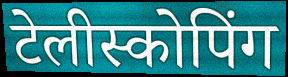
टेलीस्कोपिंग